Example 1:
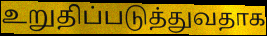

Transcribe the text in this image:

உறுதிப்படுத்துவதாக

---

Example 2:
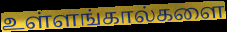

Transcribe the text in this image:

உள்ளங்கால்களை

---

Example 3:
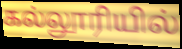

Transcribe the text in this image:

கல்லூரியில்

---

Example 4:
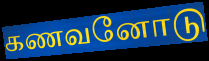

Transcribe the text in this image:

கணவனோடு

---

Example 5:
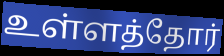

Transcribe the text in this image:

உள்ளத்தோர்